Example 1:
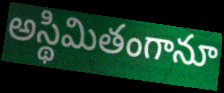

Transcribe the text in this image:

అస్థిమితంగానూ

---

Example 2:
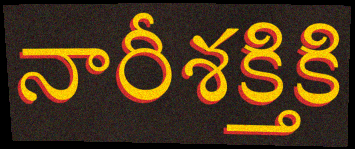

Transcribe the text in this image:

నారీశక్తికి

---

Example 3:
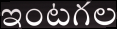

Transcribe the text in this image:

ఇంటగల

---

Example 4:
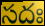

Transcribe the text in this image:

సదః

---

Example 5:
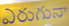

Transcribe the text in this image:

ఎరుగునా